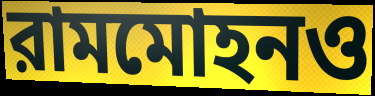
রামমোহনও